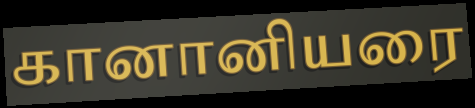
கானானியரை